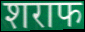
शराफ